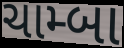
ચામ્બા